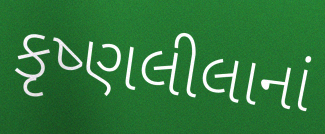
કૃષ્ણલીલાનાં